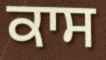
ਕਾਸ